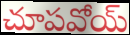
చూపవోయ్